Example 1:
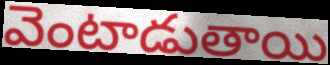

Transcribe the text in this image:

వెంటాడుతాయి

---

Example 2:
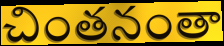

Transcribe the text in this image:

చింతనంతా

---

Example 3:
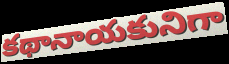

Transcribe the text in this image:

కథానాయకునిగా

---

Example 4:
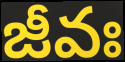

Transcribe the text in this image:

జీవః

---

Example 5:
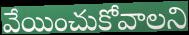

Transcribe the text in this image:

వేయించుకోవాలని